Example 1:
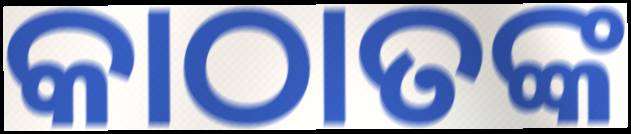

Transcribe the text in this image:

କାଠାତଙ୍କ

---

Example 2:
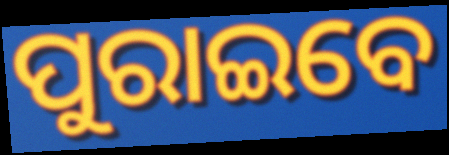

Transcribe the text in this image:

ପୁରାଇବେ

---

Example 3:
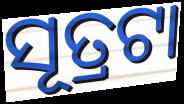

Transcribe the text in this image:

ସୂତ୍ରଟା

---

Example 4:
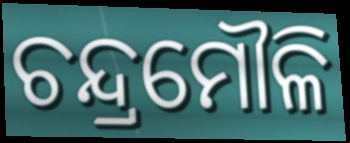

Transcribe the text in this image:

ଚନ୍ଦ୍ରମୌଳି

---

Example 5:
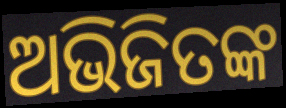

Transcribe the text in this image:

ଅଭିଜିତଙ୍କ